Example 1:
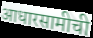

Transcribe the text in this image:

आधारसामीची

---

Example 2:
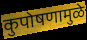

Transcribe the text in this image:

कुपोषणामुळे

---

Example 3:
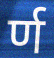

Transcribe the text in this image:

र्ण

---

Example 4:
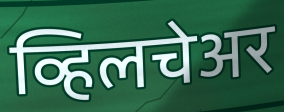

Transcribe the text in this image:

व्हिलचेअर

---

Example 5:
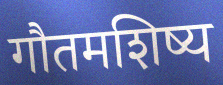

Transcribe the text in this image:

गौतमशिष्य